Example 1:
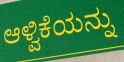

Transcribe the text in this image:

ಆಳ್ವಿಕೆಯನ್ನು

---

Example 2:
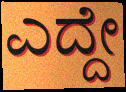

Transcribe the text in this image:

ಎದ್ದೇ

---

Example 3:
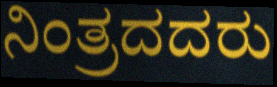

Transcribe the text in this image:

ನಿಂತ್ರದದರು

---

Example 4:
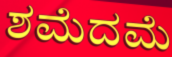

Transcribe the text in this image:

ಶಮೆದಮೆ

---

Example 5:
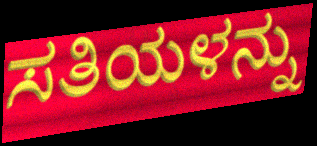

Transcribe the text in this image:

ಸತಿಯಳನ್ನು